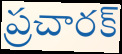
ప్రచారక్